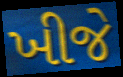
ખીજે